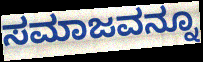
ಸಮಾಜವನ್ನೂ